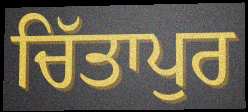
ਚਿੱਤਾਪੁਰ